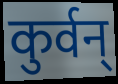
कुर्वन्